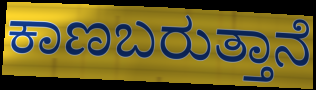
ಕಾಣಬರುತ್ತಾನೆ